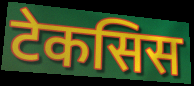
टेकसिस